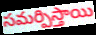
సమర్పిస్తాయి